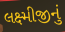
લક્ષ્મીજીનું